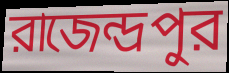
রাজেন্দ্রপুর